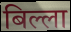
बिल्ला